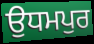
ਉਧਮਪੁਰ